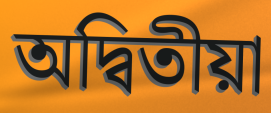
অদ্বিতীয়া